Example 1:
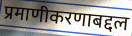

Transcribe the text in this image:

प्रमाणीकरणाबद्दल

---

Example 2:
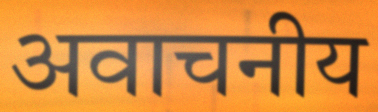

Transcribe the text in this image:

अवाचनीय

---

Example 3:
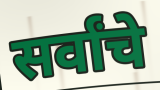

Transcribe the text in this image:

सर्वांचे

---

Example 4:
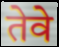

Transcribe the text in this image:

तेवे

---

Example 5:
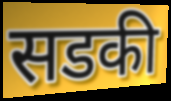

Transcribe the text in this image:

सडकी